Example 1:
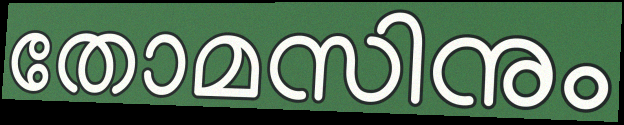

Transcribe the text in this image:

തോമസിനും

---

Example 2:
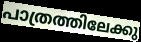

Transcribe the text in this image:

പാത്രത്തിലേക്കു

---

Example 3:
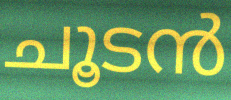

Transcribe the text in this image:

ചൂടൻ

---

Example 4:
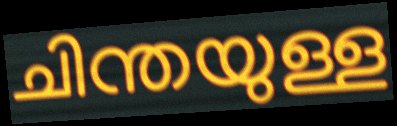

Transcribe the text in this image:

ചിന്തയുള്ള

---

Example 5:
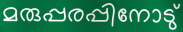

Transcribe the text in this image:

മരുപ്പരപ്പിനോടു്